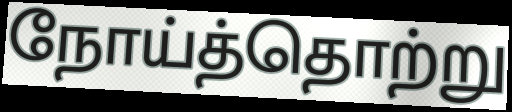
நோய்த்தொற்று